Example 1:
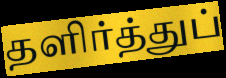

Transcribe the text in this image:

தளிர்த்துப்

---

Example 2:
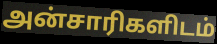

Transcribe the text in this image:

அன்சாரிகளிடம்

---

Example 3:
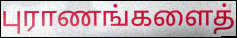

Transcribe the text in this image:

புராணங்களைத்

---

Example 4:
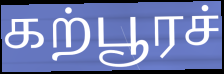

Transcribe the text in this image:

கற்பூரச்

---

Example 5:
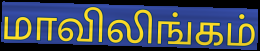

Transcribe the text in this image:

மாவிலிங்கம்